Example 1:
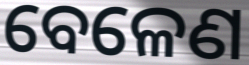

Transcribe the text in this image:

ବେଳେଣ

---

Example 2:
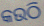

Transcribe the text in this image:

କଉଠି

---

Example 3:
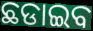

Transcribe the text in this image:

ଛଡାଇବ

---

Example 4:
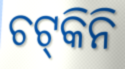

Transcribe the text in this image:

ଚଟ୍‍କିନି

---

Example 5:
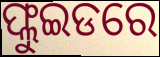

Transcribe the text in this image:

ଫ୍ଲୁଇଡରେ